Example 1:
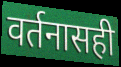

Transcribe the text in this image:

वर्तनासही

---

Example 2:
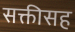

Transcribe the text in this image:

सक्तीसह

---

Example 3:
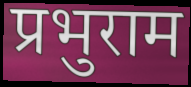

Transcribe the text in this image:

प्रभुराम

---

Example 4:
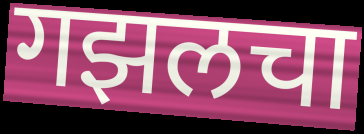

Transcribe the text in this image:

गझलचा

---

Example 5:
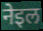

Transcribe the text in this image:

नेइल